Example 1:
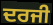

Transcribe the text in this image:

ਦਰਜੀ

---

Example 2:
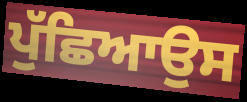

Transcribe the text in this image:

ਪੁੱਛਿਆਉਸ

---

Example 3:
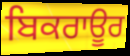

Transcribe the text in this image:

ਬਿਕਰਾਊਰ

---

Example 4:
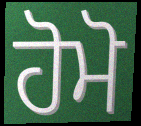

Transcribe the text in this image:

ਹੋਮੋ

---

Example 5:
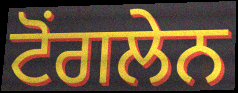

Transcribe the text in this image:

ਟੋਂਗਲੇਨ